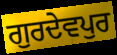
ਗੁਰਦੇਵਪੁਰ